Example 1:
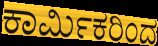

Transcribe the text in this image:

ಕಾರ್ಮಿಕರಿಂದ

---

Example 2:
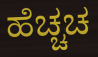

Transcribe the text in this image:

ಹೆಚ್ಚಚ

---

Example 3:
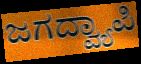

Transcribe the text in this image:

ಜಗದ್ವ್ಯಾಪಿ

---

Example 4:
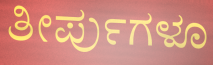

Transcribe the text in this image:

ತೀರ್ಪುಗಳೂ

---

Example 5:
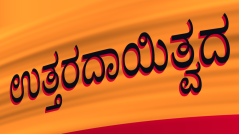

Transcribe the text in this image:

ಉತ್ತರದಾಯಿತ್ವದ